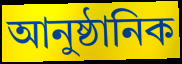
আনুষ্ঠানিক